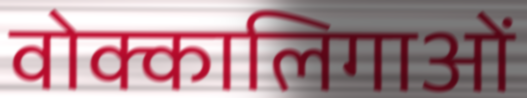
वोक्कालिगाओं